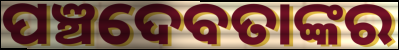
ପଞ୍ଚଦେବତାଙ୍କର